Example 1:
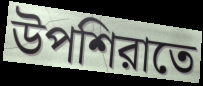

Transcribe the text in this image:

উপশিরাতে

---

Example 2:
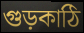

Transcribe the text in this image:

গুড়কাঠি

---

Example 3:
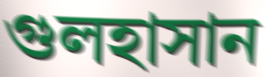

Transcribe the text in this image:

গুলহাসান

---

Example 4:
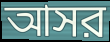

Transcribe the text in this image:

আসর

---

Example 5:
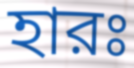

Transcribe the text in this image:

হারঃ